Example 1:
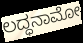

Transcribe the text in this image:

ಲದ್ಧನಾಮೋ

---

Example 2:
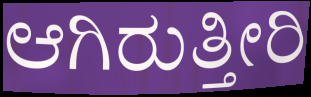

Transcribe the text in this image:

ಆಗಿರುತ್ತೀರಿ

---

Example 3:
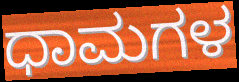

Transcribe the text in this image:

ಧಾಮಗಳ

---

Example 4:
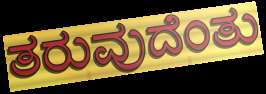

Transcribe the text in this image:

ತರುವುದೆಂತು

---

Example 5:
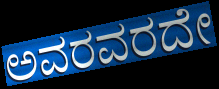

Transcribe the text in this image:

ಅವರವರದೇ